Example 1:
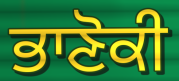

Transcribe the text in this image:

ਭਾਣੋਕੀ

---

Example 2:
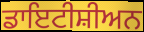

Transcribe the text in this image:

ਡਾਇਟੀਸ਼ੀਅਨ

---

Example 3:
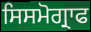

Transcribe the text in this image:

ਸਿਸਮੋਗ੍ਰਾਫ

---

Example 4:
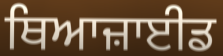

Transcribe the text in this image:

ਥਿਆਜ਼ਾਈਡ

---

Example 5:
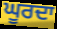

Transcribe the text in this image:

ਘੂਰਦਾ